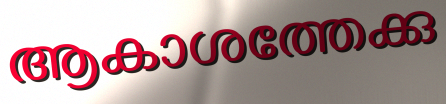
ആകാശത്തേക്കു